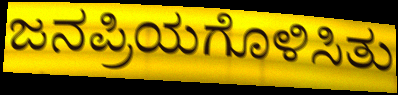
ಜನಪ್ರಿಯಗೊಳಿಸಿತು